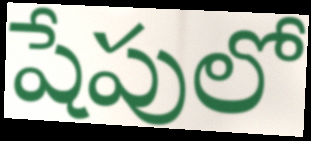
షేపులో